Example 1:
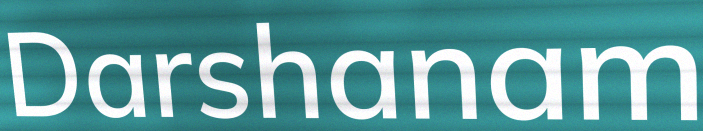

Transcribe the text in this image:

Darshanam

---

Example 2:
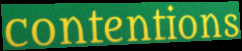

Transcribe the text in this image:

contentions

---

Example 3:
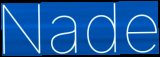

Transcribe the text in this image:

Nade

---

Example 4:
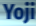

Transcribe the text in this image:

Yoji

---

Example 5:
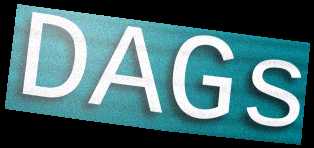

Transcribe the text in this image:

DAGs